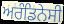
ਅਰੰਡਿਨੇਸੀ